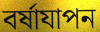
বর্ষাযাপন